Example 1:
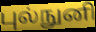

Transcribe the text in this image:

புல்நுனி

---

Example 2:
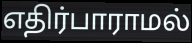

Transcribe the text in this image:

எதிர்பாராமல்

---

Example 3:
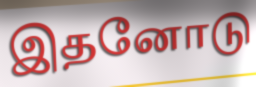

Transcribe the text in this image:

இதனோடு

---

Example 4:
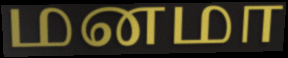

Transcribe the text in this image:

மனமா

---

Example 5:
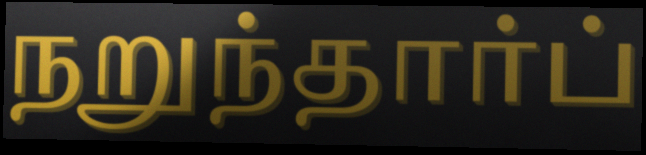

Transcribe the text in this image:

நறுந்தார்ப்